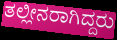
ತಲ್ಲೀನರಾಗಿದ್ದರು